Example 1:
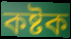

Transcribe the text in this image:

কষ্টক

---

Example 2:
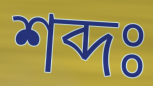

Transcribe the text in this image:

শব্দঃ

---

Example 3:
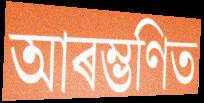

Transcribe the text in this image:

আৰম্ভণিত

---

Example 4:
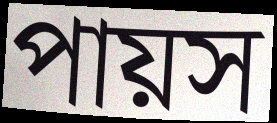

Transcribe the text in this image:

পায়স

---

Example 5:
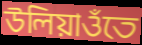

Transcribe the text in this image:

উলিয়াওঁতে